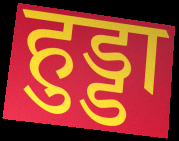
हुड्डा